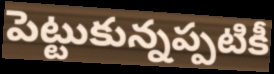
పెట్టుకున్నప్పటికీ